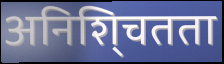
अनिश्‍चितता